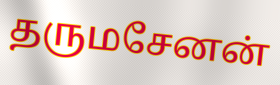
தருமசேனன்